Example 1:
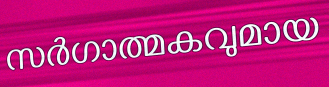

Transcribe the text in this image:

സർഗാത്മകവുമായ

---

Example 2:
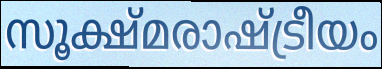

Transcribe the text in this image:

സൂക്ഷ്മരാഷ്ട്രീയം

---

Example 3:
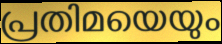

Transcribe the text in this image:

പ്രതിമയെയും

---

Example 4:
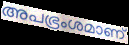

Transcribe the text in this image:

അപഭ്രംശമാണ്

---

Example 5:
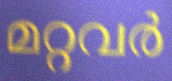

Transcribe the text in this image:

മറ്റവർ